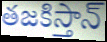
తజకిస్తాన్